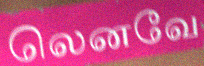
லெனவே